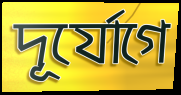
দূর্যোগে